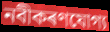
নবীকৰণযোগ্য